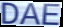
DAE